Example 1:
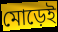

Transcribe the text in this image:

মোড়েই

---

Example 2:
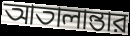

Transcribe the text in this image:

আতালান্তার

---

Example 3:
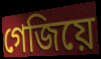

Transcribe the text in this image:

গেজিয়ে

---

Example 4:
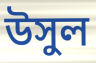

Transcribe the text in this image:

উসুল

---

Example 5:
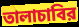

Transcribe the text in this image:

তালাচাবির